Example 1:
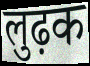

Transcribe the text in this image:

लुढ़क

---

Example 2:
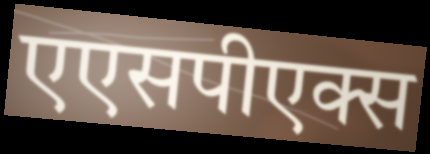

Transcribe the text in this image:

एएसपीएक्स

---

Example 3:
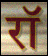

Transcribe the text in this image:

रॉ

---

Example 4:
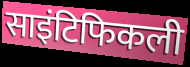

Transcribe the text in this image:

साइंटिफिकली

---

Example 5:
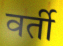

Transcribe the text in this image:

वर्ती